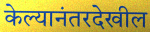
केल्यानंतरदेखील